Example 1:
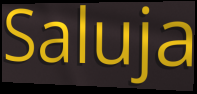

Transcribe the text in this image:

Saluja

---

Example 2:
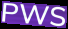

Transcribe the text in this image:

PWS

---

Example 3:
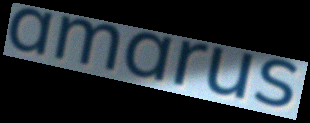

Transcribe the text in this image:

amarus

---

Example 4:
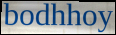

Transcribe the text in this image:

bodhhoy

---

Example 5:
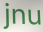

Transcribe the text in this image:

jnu